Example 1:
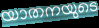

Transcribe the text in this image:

യാതനയുടെ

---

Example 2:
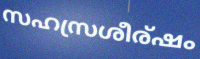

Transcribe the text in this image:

സഹസ്രശീര്ഷം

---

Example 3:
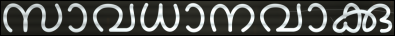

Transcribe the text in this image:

സാവധാനവാക്കു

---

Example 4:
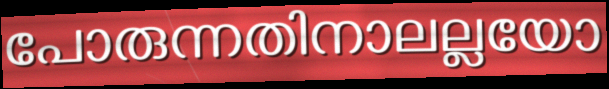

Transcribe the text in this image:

പോരുന്നതിനാലല്ലയോ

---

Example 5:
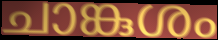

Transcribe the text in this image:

ചാങ്കുശം